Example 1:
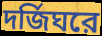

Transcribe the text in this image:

দর্জিঘরে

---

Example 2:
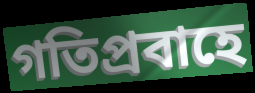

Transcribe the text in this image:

গতিপ্রবাহে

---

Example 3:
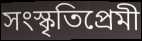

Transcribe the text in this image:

সংস্কৃতিপ্রেমী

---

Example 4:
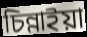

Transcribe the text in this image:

চিন্নাইয়া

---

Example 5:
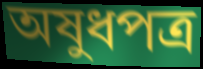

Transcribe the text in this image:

অষুধপত্র